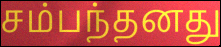
சம்பந்தனது